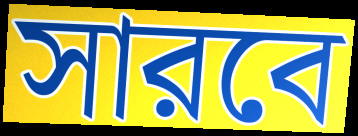
সারবে